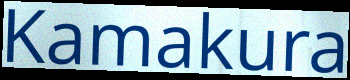
Kamakura